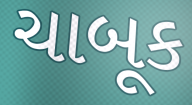
ચાબૂક